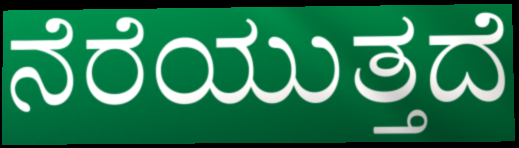
ನೆರೆಯುತ್ತದೆ